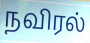
நவிரல்